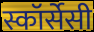
स्कॉर्सेसी